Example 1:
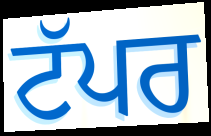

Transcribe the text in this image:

ਟੱਪਰ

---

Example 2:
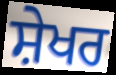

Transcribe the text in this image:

ਸ਼ੇਖਰ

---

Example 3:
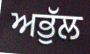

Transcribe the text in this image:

ਅਭੁੱਲ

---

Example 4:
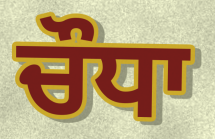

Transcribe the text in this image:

ਚੌਧਾ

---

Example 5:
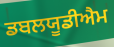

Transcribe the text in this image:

ਡਬਲਯੂਡੀਐਮ